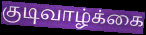
குடிவாழ்க்கை